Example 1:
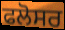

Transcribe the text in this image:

ਫਲੋਸਰ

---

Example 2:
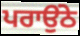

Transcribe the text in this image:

ਪਰਾਉਂਠੇ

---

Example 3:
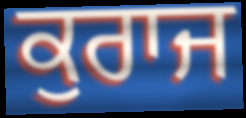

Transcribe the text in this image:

ਕੁਰਾਜ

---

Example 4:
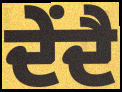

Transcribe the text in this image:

ਦੇਂਦੈ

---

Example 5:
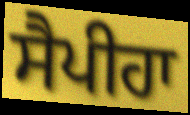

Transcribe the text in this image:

ਸੈਪੀਹਾ